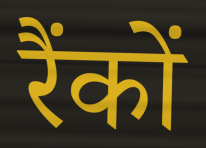
रैंकों